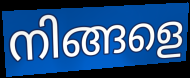
നിങ്ങളെ